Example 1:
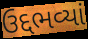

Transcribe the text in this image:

ઉદ્દભવ્યાં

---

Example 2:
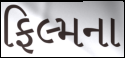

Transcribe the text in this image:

ફિલ્મના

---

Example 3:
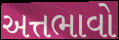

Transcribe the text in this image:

અત્તભાવો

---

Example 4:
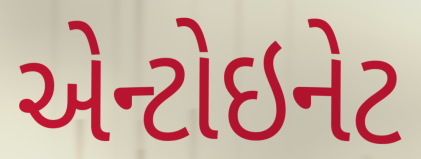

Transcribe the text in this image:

એન્ટોઇનેટ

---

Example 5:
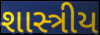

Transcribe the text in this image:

શાસ્ત્રીય